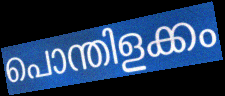
പൊന്തിളക്കം